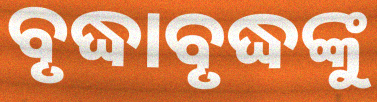
ବୃଦ୍ଧାବୃଦ୍ଧଙ୍କୁ